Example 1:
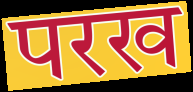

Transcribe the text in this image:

परख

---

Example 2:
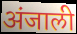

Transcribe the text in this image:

अंजाली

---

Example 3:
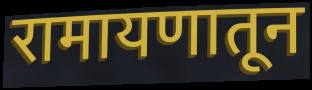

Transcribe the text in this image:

रामायणातून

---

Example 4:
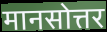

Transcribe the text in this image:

मानसोत्तर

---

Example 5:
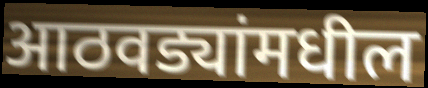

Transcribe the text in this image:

आठवड्यांमधील